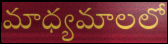
మాధ్యమాలలో